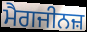
ਮੈਗਜੀਨਜ਼